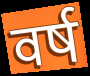
वर्ष